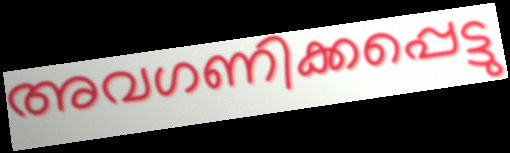
അവഗണിക്കപ്പെട്ടു